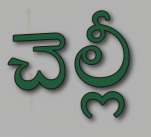
చెల్లీ